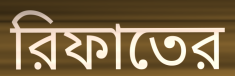
রিফাতের